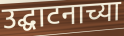
उद्घाटनाच्या